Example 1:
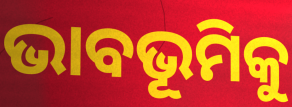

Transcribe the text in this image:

ଭାବଭୂମିକୁ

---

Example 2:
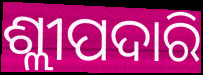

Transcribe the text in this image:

ଶ୍ଲୀପଦାରି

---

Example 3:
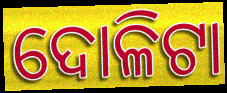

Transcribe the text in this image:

ଦୋଳିଟା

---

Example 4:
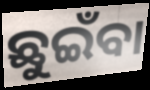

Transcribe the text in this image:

ଛୁଇଁବା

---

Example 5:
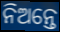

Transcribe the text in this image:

ନିଅନ୍ତେ